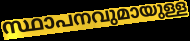
സ്ഥാപനവുമായുള്ള